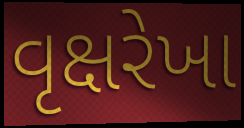
વૃક્ષરેખા